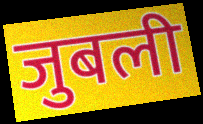
जुबली